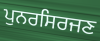
ਪੁਨਰਸਿਰਜਣ